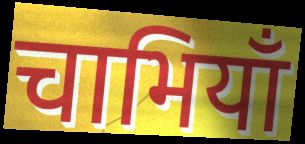
चाभियाँ